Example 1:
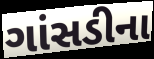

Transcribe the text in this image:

ગાંસડીના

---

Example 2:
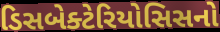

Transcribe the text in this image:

ડિસબેક્ટેરિયોસિસનો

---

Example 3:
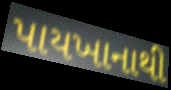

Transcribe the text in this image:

પાયખાનાથી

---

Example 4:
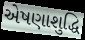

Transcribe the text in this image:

એષણાશુદ્ધિ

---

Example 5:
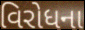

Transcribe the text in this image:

વિરોધના